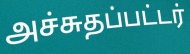
அச்சுதப்பட்டர்